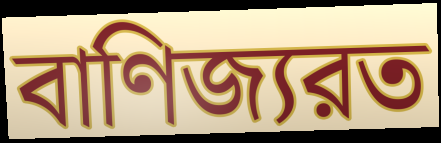
বাণিজ্যরত